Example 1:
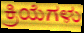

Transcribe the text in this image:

ಕ್ರಿಯೆಗಳು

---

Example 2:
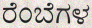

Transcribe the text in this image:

ರೆಂಬೆಗಳ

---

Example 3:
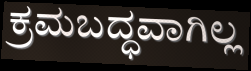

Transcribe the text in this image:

ಕ್ರಮಬದ್ಧವಾಗಿಲ್ಲ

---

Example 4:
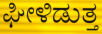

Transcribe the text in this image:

ಘೀಳಿಡುತ್ತ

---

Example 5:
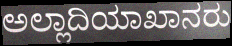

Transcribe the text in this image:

ಅಲ್ಲಾದಿಯಾಖಾನರು